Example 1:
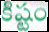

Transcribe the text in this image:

కిష్టం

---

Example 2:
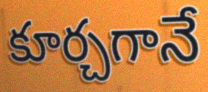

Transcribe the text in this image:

కూర్చగానే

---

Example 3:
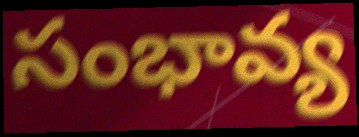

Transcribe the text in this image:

సంభావ్య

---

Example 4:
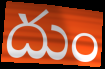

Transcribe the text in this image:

దుం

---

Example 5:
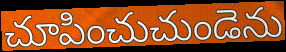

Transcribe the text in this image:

చూపించుచుండెను